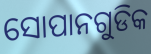
ସୋପାନଗୁଡିକ